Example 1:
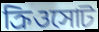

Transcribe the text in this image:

ক্রিওসোট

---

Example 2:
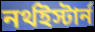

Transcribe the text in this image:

নর্থইস্টার্ন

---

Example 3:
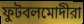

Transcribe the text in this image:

ফুটবলমোদীরা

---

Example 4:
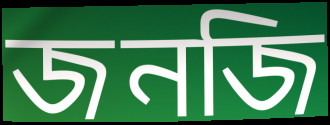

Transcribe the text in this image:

জনজি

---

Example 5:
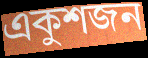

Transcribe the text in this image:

একুশজন